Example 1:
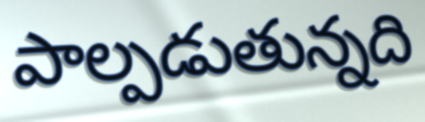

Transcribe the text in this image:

పాల్పడుతున్నది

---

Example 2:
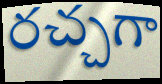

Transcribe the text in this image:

రచ్చగా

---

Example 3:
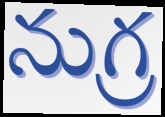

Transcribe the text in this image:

నుగ్ర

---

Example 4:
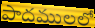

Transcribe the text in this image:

పాదములలో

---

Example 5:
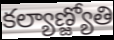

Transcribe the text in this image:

కల్యాణ్జ్యోతి